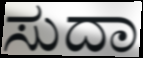
ಸುದಾ